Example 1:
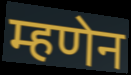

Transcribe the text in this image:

म्हणेन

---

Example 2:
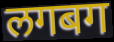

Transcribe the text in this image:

लगबग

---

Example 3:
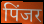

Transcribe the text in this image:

पिंजर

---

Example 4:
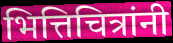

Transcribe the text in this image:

भित्तिचित्रांनी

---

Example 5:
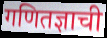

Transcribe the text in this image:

गणितज्ञाची